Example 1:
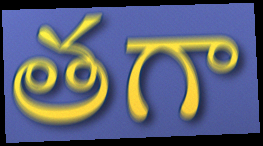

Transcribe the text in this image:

తగా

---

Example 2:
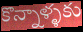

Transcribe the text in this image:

కొన్నాళ్ళకు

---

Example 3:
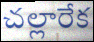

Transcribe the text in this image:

చల్లారేక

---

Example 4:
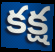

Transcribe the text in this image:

కక్ష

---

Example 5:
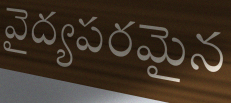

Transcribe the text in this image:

వైద్యపరమైన